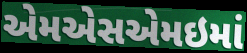
એમએસએમઇમાં